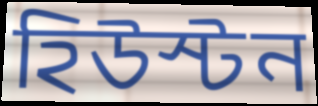
হিউস্টন